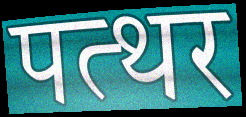
पत्थर